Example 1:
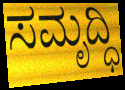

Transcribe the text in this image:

ಸಮೃದ್ಧಿ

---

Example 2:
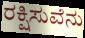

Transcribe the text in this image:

ರಕ್ಷಿಸುವೆನು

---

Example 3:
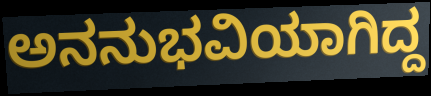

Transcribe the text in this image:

ಅನನುಭವಿಯಾಗಿದ್ದ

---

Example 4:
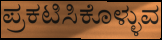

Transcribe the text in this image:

ಪ್ರಕಟಿಸಿಕೊಳ್ಳುವ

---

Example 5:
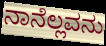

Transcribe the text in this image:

ನಾನೆಲ್ಲವನು